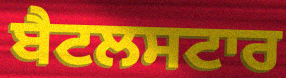
ਬੈਟਲਸਟਾਰ